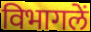
विभागलें